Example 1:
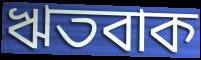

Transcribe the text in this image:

ঋতবাক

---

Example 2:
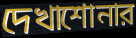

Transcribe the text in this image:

দেখাশোনার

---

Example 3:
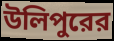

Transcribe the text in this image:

উলিপুরের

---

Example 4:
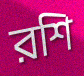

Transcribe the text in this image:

রশি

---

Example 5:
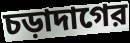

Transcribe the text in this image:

চড়াদাগের